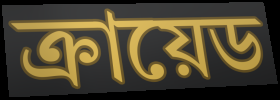
ক্রায়েড